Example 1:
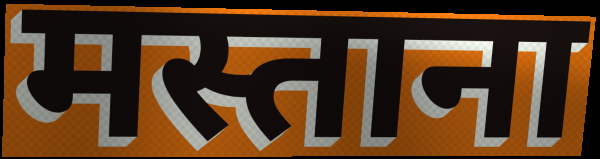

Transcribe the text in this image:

मस्ताना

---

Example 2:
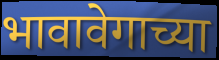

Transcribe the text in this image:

भावावेगाच्या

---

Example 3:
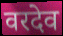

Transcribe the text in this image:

वरदेव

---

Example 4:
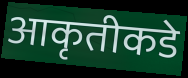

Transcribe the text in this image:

आकृतीकडे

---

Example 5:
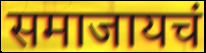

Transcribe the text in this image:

समाजायचं